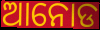
ଆନୋଡ